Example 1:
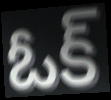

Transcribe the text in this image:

ఓక్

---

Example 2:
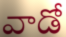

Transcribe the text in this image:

వాడో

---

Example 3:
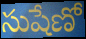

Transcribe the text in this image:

సుషేణో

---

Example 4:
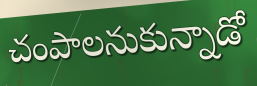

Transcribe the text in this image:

చంపాలనుకున్నాడో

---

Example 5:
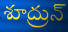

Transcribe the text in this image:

శూద్రున్